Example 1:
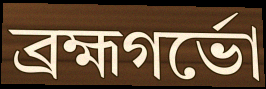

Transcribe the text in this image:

ব্রহ্মগর্ভো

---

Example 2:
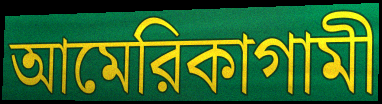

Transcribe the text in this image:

আমেরিকাগামী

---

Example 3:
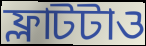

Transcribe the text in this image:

ফ্লাটটাও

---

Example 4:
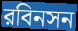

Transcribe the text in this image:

রবিনসন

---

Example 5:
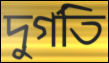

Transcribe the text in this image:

দুর্গতি